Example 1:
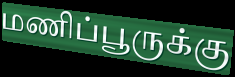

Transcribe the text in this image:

மணிப்பூருக்கு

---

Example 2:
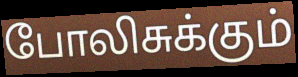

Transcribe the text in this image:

போலிசுக்கும்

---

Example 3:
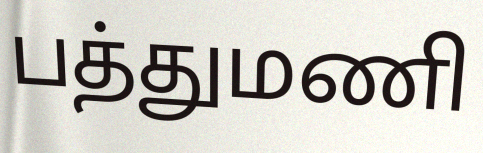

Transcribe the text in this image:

பத்துமணி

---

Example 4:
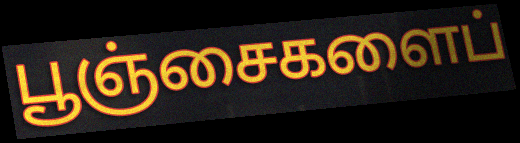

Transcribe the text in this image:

பூஞ்சைகளைப்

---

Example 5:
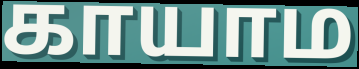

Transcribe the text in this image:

காயாம